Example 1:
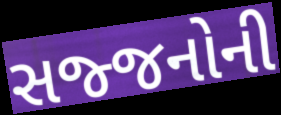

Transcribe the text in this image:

સજ્જનોની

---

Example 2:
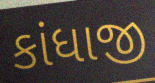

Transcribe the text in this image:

કાંધાજી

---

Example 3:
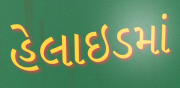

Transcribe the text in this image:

હેલાઇડમાં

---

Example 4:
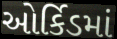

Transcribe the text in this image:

ઓર્કિડમાં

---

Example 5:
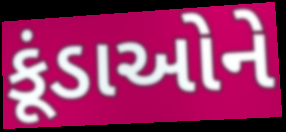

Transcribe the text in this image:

કૂંડાઓને